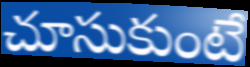
చూసుకుంటే